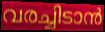
വരച്ചിടാൻ